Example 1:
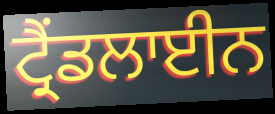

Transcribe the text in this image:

ਟ੍ਰੈਂਡਲਾਈਨ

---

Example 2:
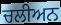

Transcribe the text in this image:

ਚਲੀਅਨ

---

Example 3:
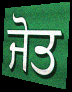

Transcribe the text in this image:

ਜੋਤ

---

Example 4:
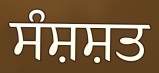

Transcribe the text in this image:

ਸੰਸ਼ਸ਼ਤ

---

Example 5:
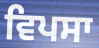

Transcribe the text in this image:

ਵਿਪਸਾ